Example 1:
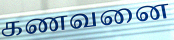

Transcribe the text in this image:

கணவனை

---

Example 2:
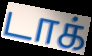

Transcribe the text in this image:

டாக்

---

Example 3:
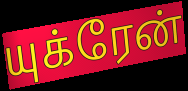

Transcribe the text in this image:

யுக்ரேன்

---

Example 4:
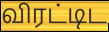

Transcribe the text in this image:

விரட்டிட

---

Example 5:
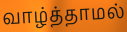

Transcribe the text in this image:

வாழ்த்தாமல்